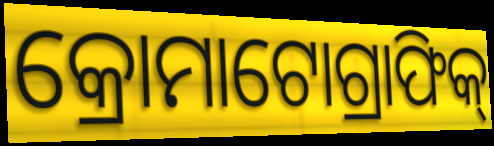
କ୍ରୋମାଟୋଗ୍ରାଫିକ୍